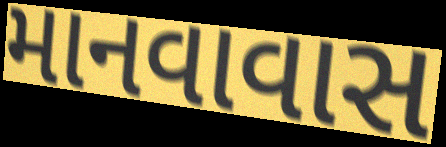
માનવાવાસ